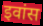
इवांस